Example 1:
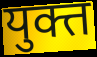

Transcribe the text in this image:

युक्त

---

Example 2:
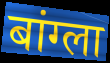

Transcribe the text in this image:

बांग्ला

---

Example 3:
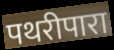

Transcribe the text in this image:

पथरीपारा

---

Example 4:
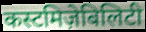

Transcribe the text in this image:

कस्टमिज़ेबिलिटी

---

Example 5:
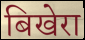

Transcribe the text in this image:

बिखेरा